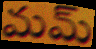
మమ్